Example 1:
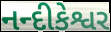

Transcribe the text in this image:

નન્દીકેશ્વર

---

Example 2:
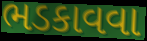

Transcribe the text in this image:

ભડકાવવા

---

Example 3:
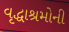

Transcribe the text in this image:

વૃદ્ધાશ્રમોની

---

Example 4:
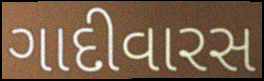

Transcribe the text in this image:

ગાદીવારસ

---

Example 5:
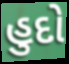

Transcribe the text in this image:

હુદો